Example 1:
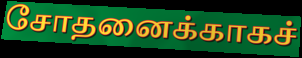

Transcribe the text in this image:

சோதனைக்காகச்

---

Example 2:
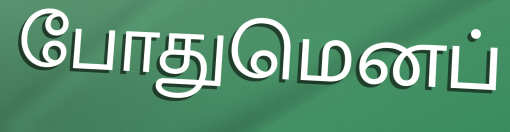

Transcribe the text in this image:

போதுமெனப்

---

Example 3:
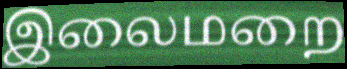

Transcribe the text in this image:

இலைமறை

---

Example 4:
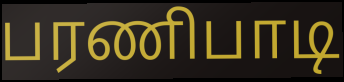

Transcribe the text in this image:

பரணிபாடி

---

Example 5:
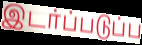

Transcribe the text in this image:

இடர்ப்படுப்ப